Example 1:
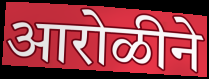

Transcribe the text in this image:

आरोळीने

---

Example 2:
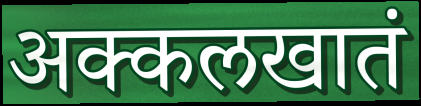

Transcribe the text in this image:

अक्कलखातं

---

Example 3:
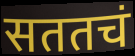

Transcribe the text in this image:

सततचं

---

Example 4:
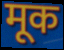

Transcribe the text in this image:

मूक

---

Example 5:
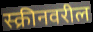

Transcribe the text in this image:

स्क्रीनवरील